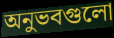
অনুভবগুলো